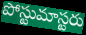
పోస్టుమాస్టరు